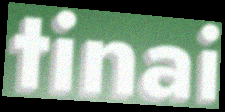
tinai